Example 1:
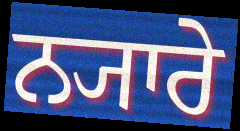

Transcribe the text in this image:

ਨ੍ਯਾਰੇ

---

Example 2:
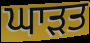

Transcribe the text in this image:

ਘਾੜਤ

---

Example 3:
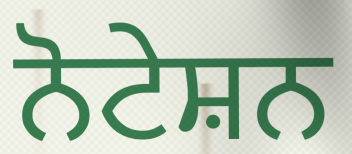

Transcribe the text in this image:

ਨੋਟੇਸ਼ਨ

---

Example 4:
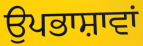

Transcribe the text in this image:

ਉਪਭਾਸ਼ਾਵਾਂ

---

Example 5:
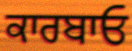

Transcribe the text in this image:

ਕਾਰਬਾਓ